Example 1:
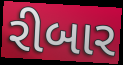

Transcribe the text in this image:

રીબાર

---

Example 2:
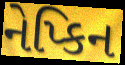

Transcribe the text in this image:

નેપ્કિન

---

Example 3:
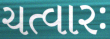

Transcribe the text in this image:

ચત્વારઃ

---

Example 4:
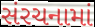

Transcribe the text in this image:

સંરચનામાં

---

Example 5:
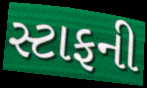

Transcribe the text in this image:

સ્ટાફની